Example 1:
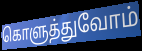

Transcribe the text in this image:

கொளுத்துவோம்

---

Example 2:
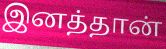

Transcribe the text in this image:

இனத்தான்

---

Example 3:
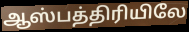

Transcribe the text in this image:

ஆஸ்பத்திரியிலே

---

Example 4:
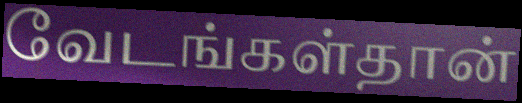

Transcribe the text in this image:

வேடங்கள்தான்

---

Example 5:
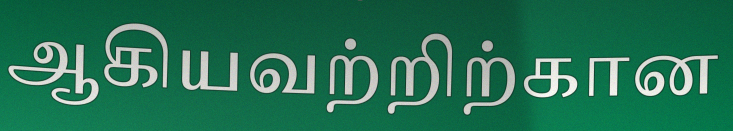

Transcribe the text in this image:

ஆகியவற்றிற்கான